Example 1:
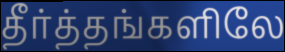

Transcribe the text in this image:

தீர்த்தங்களிலே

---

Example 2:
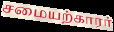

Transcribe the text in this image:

சமையற்காரர்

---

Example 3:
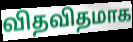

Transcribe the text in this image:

விதவிதமாக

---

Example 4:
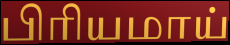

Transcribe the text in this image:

பிரியமாய்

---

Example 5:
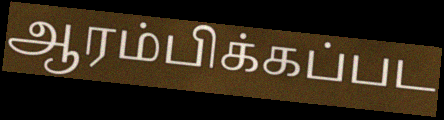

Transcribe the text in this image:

ஆரம்பிக்கப்பட